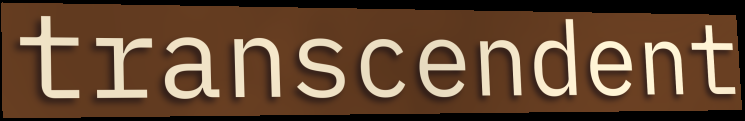
transcendent